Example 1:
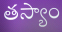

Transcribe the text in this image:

తస్యాం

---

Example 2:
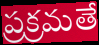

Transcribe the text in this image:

ప్రక్రమతే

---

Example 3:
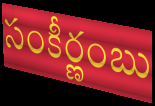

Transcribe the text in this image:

సంకీర్ణంబు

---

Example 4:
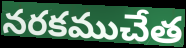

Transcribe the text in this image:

నరకముచేత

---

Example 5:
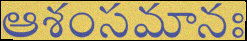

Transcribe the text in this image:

ఆశంసమానః